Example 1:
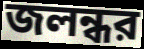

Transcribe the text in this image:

জলন্ধর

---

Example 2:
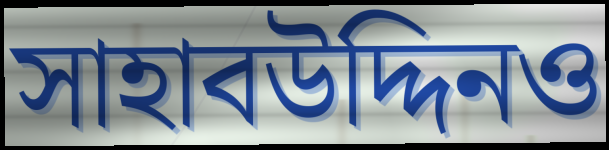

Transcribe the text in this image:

সাহাবউদ্দিনও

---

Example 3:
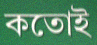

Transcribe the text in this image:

কতোই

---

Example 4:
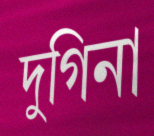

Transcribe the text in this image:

দুগিনা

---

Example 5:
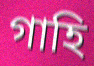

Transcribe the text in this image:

গাহি